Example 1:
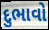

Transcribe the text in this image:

દુભાવો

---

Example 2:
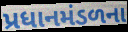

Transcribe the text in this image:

પ્રધાનમંડળના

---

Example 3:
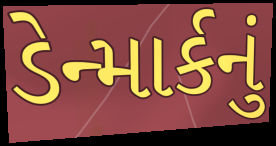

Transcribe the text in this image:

ડેન્માર્કનું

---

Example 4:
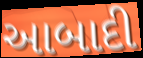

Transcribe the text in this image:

આબાદી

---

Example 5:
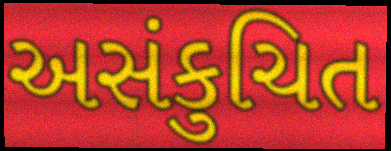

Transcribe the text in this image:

અસંકુચિત